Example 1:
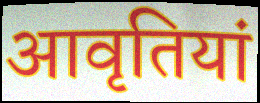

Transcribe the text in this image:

आवृतियां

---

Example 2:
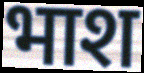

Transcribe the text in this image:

भाश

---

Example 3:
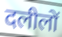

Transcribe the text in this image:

दलीलों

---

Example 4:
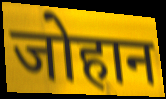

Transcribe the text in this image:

जोहान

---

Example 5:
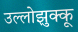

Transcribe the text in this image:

उल्लोझुक्कू